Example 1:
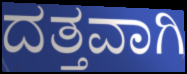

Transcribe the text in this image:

ದತ್ತವಾಗಿ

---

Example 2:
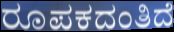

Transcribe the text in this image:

ರೂಪಕದಂತಿದೆ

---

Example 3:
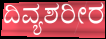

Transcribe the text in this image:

ದಿವ್ಯಶರೀರ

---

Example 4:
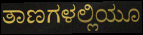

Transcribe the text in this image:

ತಾಣಗಳಲ್ಲಿಯೂ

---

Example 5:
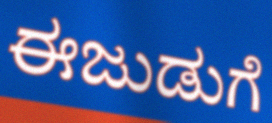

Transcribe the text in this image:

ಈಜುಡುಗೆ